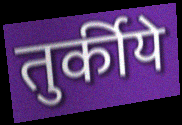
तुर्कीये